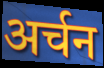
अर्चन